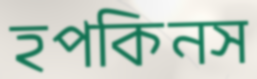
হপকিনস